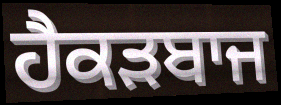
ਹੈਕੜਬਾਜ